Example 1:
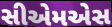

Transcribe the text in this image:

સીએમએસ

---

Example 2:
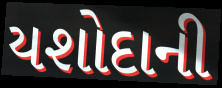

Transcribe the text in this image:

યશોદાની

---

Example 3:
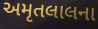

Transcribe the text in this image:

અમૃતલાલના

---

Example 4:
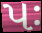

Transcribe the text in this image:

પઃ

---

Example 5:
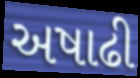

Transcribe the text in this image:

અષાઢી